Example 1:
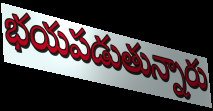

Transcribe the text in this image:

భయపడుతున్నారు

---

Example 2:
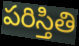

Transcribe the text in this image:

పరిస్తితి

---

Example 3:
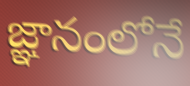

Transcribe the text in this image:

జ్ఞానంలోనే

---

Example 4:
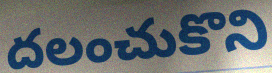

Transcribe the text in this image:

దలంచుకొని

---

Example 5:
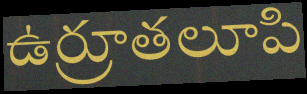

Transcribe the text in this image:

ఉర్రూతలూపి